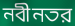
নবীনতর